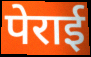
पेराई